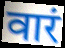
वारं